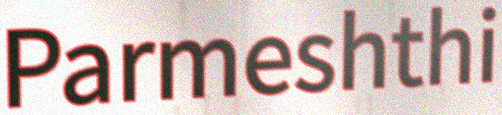
Parmeshthi